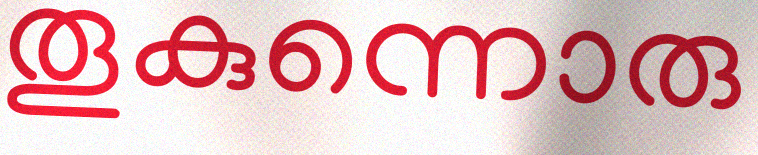
തൂകുന്നൊരു